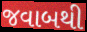
જવાબથી